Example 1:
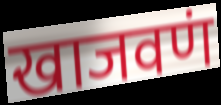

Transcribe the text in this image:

खाजवणं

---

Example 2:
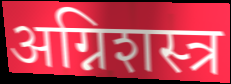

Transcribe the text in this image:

अग्निशस्त्र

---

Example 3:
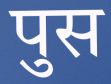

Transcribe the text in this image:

पुस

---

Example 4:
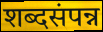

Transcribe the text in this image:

शब्दसंपन्न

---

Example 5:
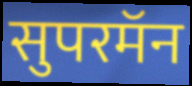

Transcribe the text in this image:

सुपरमॅन